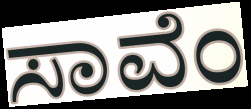
ಸಾವೆಂ